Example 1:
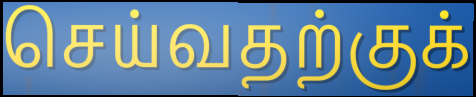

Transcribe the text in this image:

செய்வதற்குக்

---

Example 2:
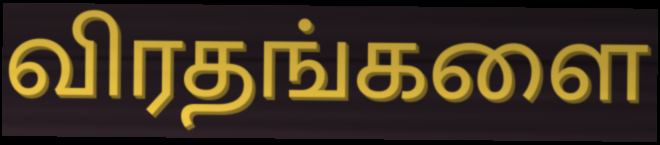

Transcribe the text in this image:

விரதங்களை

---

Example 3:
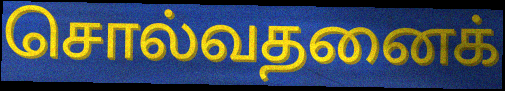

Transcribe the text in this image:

சொல்வதனைக்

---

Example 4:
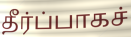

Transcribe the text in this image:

தீர்ப்பாகச்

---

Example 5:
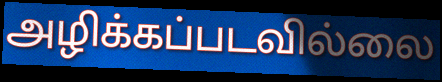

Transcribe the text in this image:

அழிக்கப்படவில்லை